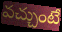
వచ్చుంటే